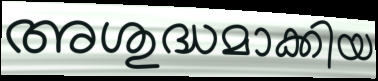
അശുദ്ധമാക്കിയ